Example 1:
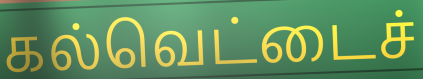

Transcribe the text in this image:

கல்வெட்டைச்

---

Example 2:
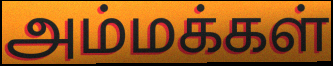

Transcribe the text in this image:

அம்மக்கள்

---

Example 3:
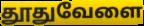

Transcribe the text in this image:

தூதுவேளை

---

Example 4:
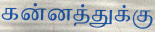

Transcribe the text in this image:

கன்னத்துக்கு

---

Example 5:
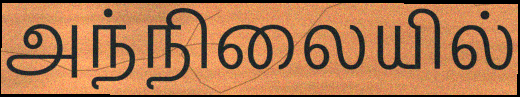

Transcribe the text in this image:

அந்நிலையில்